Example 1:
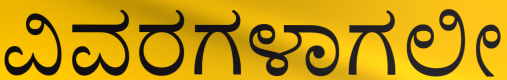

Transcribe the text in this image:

ವಿವರಗಳಾಗಲೀ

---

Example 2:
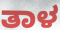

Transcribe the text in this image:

ತಾಳ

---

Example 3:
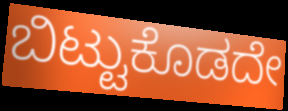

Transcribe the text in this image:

ಬಿಟ್ಟುಕೊಡದೇ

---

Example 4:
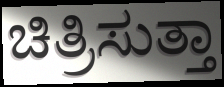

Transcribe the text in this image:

ಚಿತ್ರಿಸುತ್ತಾ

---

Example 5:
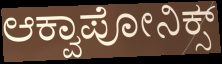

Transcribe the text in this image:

ಆಕ್ವಾಪೋನಿಕ್ಸ್